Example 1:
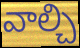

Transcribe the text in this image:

వాల్చి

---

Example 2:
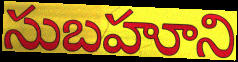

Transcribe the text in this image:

సుబహూని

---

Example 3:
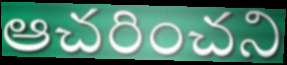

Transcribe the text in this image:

ఆచరించని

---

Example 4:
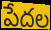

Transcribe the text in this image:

పేదల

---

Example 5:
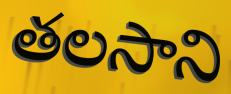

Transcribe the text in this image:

తలసాని